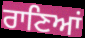
ਰਾਣਿਆਂ